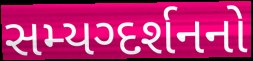
સમ્યગ્દર્શનનો